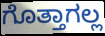
ಗೊತ್ತಾಗಲ್ಲ